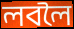
লবলৈ